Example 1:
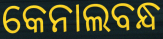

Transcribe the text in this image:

କେନାଲବନ୍ଧ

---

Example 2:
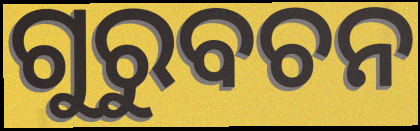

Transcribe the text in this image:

ଗୁରୁବଚନ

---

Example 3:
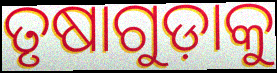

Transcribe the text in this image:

ତୃଷାଗୁଡ଼ାକୁ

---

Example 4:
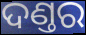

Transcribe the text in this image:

ଦଣ୍ତର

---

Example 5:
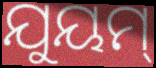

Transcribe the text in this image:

ଯୁୟମ୍